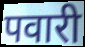
पवारी